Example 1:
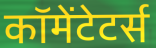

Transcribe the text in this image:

कॉमेंटेटर्स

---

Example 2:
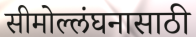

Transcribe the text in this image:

सीमोल्लंघनासाठी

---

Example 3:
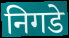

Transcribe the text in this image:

निगडे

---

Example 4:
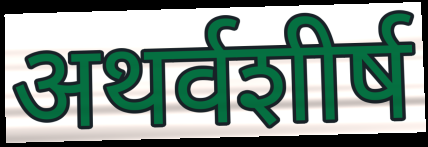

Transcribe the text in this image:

अथर्वशीर्ष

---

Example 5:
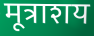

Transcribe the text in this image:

मूत्राशय